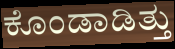
ಕೊಂಡಾಡಿತ್ತು